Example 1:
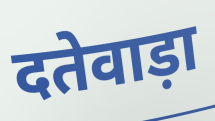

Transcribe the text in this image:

दतेवाड़ा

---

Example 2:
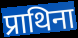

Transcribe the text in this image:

प्राथिना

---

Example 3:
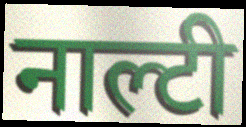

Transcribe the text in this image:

नाल्टी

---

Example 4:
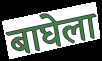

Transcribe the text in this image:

बाघेला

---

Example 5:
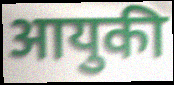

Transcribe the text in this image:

आयुकी